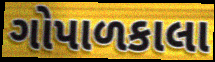
ગોપાળકાલા